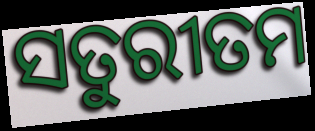
ସତୁରୀତମ